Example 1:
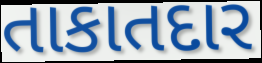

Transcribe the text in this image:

તાકાતદાર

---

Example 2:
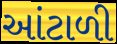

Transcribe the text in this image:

આંટાળી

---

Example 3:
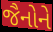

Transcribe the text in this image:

જૈનોને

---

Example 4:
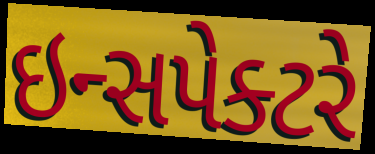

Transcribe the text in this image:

ઇન્સપેક્ટરે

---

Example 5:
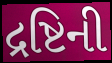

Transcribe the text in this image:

દ્રષ્ટિની